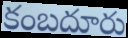
కంబదూరు